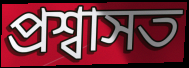
প্ৰশ্বাসত